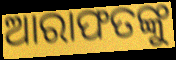
ଆରାଫତଙ୍କୁ